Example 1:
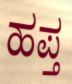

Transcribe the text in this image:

ಹಪ್ತ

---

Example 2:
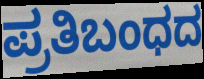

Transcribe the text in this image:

ಪ್ರತಿಬಂಧದ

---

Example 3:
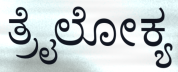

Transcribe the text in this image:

ತ್ರೈಲೋಕ್ಯ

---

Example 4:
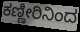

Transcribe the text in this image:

ಕಣ್ಣೀರಿನಿಂದ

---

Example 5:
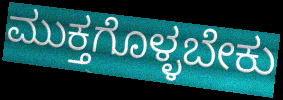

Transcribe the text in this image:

ಮುಕ್ತಗೊಳ್ಳಬೇಕು